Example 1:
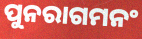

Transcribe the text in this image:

ପୁନରାଗମନଂ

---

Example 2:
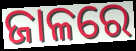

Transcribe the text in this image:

ଜାଳରେ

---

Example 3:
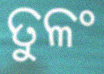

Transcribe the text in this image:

ତୁଳଂ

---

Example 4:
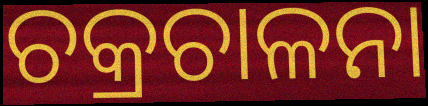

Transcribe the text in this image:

ଚକ୍ରଚାଳନା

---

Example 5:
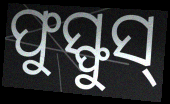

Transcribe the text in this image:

ଫୁସ୍ଫୁସ୍